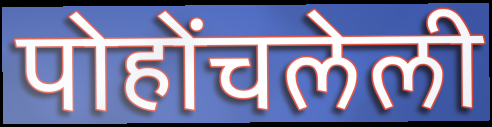
पोहोंचलेली